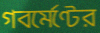
গবর্মেণ্টের